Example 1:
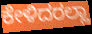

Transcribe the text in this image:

ಕೇಳಿದರಲ್ಲಾ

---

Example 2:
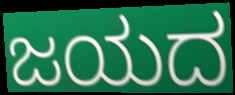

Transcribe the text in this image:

ಜಯದ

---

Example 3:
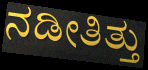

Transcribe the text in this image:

ನಡೀತಿತ್ತು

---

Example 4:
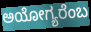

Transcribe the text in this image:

ಅಯೋಗ್ಯರೆಂಬ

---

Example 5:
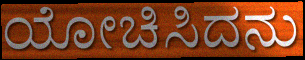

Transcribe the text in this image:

ಯೋಚಿಸಿದನು